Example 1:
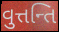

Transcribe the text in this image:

વુત્તન્તિ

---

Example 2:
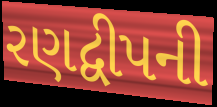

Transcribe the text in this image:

રણદ્વીપની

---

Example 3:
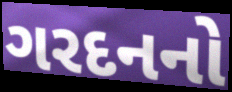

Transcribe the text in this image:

ગરદનનો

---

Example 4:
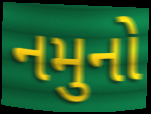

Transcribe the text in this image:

નમુનો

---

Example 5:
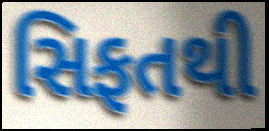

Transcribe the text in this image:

સિફતથી